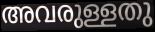
അവരുള്ളതു